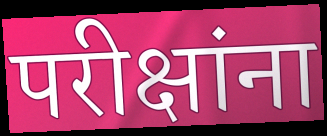
परीक्षांना